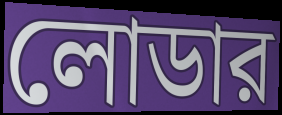
লোডার